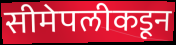
सीमेपलीकडून